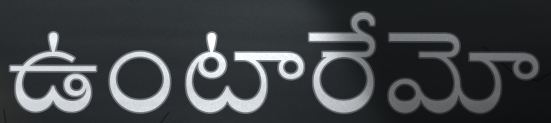
ఉంటారేమో